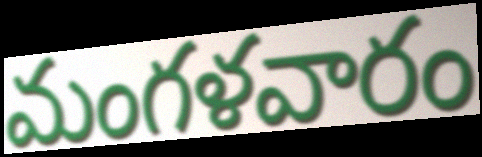
మంగళవారం